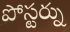
పోస్టర్ను